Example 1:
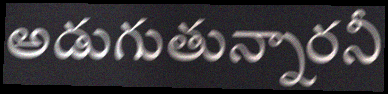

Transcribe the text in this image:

అడుగుతున్నారనీ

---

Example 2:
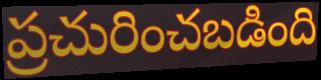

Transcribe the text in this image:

ప్రచురించబడింది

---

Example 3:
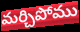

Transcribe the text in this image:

మర్చిపోము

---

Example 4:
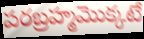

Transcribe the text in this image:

పరబ్రహ్మమొక్కటే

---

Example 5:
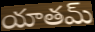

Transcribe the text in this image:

యాతమ్